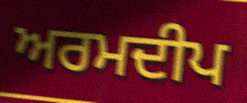
ਅਰਮਦੀਪ